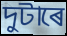
দুটাৰে